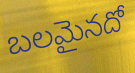
బలమైనదో